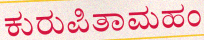
ಕುರುಪಿತಾಮಹಂ